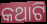
କଥାଟି